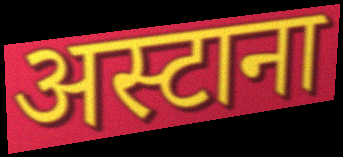
अस्टाना